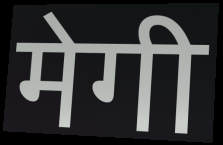
मेगी